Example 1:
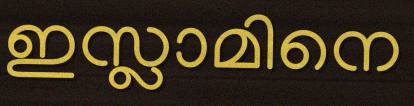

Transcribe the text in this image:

ഇസ്ലാമിനെ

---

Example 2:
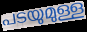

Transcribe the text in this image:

പടയുമുള്ള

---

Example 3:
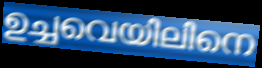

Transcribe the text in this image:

ഉച്ചവെയിലിനെ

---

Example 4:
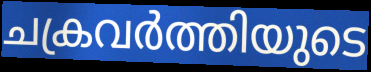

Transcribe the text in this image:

ചക്രവർത്തിയുടെ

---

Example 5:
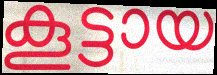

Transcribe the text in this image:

കൂട്ടായ